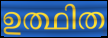
ഉത്ഥിത